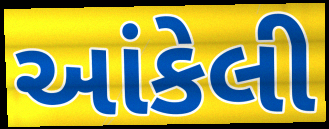
આંકેલી